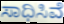
ಸಾಧಿಸಿವೆ